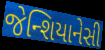
જેન્શિયાનેસી